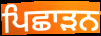
ਪਿਛਾੜਨ